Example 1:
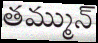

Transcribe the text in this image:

తమ్మున్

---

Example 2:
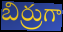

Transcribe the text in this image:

బిర్రుగా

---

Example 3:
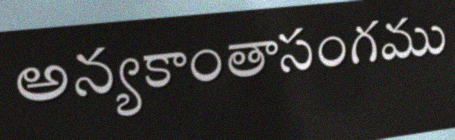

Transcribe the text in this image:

అన్యకాంతాసంగము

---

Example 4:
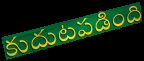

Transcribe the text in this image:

కుదుటపడింది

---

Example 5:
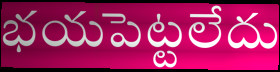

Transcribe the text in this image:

భయపెట్టలేదు